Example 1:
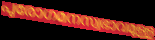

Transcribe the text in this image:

പുരോഗമനസ്വഭാവമുള്ള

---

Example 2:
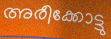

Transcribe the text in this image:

അരീക്കോട്ടു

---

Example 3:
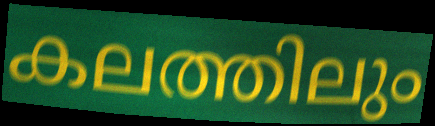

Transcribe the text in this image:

കലത്തിലും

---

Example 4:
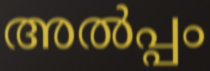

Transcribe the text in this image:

അൽപ്പം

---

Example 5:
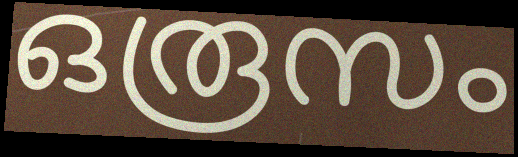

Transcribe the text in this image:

ഒരൂസം